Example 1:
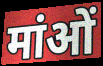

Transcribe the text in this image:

मांओं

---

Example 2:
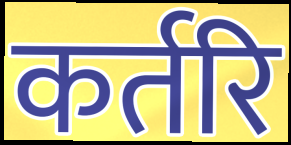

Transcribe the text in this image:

कर्तरि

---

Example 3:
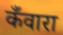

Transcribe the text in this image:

कँवारा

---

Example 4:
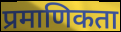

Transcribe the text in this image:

प्रमाणिकता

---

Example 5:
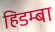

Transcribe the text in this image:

हिडम्बा